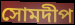
সোমদীপ